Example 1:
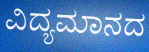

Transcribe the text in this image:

ವಿದ್ಯಮಾನದ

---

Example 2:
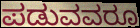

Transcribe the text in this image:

ಪಡುವವರೂ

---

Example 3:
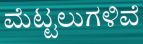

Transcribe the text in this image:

ಮೆಟ್ಟಲುಗಳಿವೆ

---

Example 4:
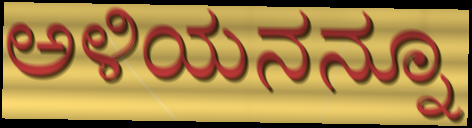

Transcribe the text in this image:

ಅಳಿಯನನ್ನೂ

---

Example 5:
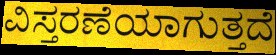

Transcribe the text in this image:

ವಿಸ್ತರಣೆಯಾಗುತ್ತದೆ